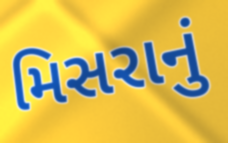
મિસરાનું